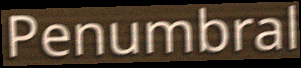
Penumbral